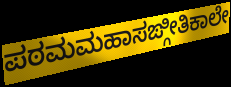
ಪಠಮಮಹಾಸಙ್ಗೀತಿಕಾಲೇ